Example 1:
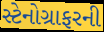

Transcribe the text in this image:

સ્ટેનોગ્રાફરની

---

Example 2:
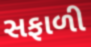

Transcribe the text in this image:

સફાળી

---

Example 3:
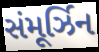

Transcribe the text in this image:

સંમૂર્ઝિન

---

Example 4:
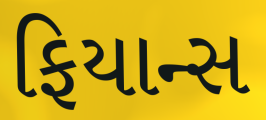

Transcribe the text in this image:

ફિયાન્સ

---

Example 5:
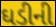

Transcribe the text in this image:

ઘડીની